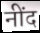
नींद